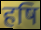
हषि